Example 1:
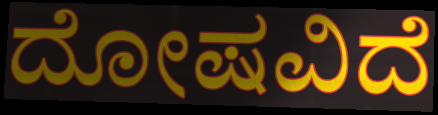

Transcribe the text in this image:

ದೋಷವಿದೆ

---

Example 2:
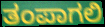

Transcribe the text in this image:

ತಂಪಾಗಲಿ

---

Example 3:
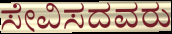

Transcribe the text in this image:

ಸೇವಿಸದವರು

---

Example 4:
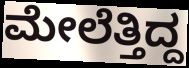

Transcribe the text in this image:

ಮೇಲೆತ್ತಿದ್ದ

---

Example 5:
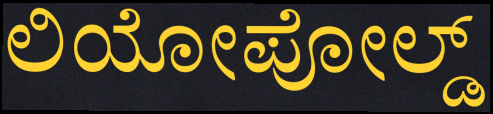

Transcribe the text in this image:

ಲಿಯೋಪೋಲ್ಡ್